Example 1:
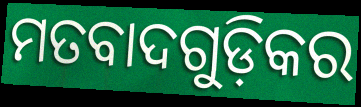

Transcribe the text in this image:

ମତବାଦଗୁଡ଼ିକର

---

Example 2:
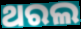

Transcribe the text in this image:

ଥରଲ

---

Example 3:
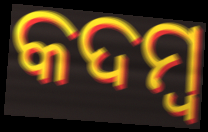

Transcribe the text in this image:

କଦମ୍ୱ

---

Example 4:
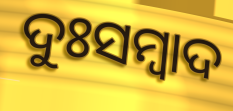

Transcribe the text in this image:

ଦୁଃସମ୍ୱାଦ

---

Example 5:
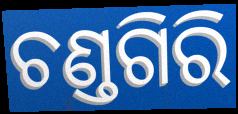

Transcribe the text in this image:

ଚଣ୍ଡଗିରି